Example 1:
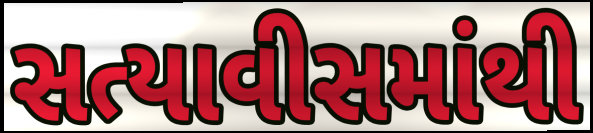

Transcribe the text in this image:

સત્યાવીસમાંથી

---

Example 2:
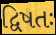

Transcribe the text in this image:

દ્વિષતઃ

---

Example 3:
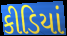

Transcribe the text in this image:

કીડિયાં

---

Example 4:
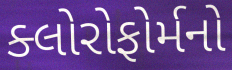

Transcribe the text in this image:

ક્લોરોફોર્મનો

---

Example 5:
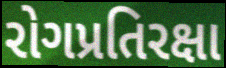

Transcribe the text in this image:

રોગપ્રતિરક્ષા